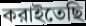
করাইতেছি